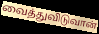
வைத்துவிடுவான்